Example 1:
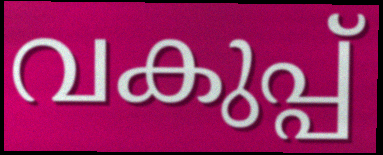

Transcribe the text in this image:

വകുപ്പ്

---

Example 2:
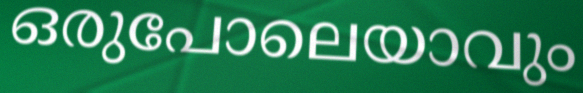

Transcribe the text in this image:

ഒരുപോലെയാവും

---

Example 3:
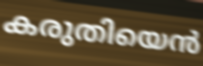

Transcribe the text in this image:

കരുതിയെൻ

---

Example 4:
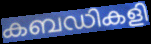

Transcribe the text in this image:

കബഡികളി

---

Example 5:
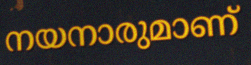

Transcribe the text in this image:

നയനാരുമാണ്